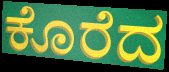
ಕೊರೆದ